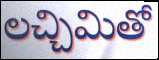
లచ్చిమితో